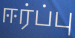
ஈர்ப்பு